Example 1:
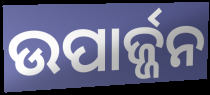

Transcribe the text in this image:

ଉପାର୍ଜ୍ଜନ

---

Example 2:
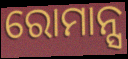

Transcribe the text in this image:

ରୋମାନ୍ସ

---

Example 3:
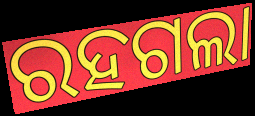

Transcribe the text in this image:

ରହଗଲା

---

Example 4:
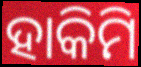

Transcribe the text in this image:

ହାକିମି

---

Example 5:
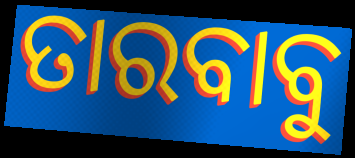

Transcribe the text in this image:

ତାରବାବୁ